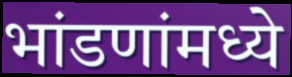
भांडणांमध्ये